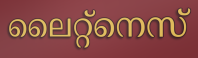
ലൈറ്റ്നെസ്